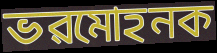
ভৱমোহনক